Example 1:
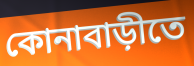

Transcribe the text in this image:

কোনাবাড়ীতে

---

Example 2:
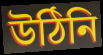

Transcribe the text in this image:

উঠিনি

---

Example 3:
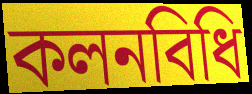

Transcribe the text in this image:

কলনবিধি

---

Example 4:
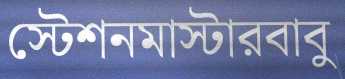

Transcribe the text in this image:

স্টেশনমাস্টারবাবু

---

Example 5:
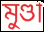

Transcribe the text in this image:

মুণ্ডা